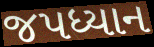
જપધ્યાન